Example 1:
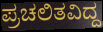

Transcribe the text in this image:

ಪ್ರಚಲಿತವಿದ್ದ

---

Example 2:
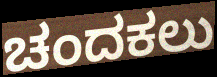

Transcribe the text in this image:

ಚಂದಕಲು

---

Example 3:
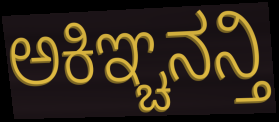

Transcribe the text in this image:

ಅಕಿಞ್ಚನನ್ತಿ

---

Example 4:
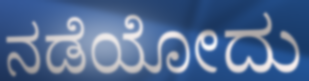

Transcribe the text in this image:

ನಡೆಯೋದು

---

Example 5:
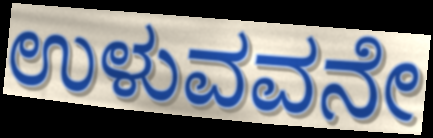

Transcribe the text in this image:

ಉಳುವವನೇ